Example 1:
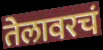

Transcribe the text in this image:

तेलावरचं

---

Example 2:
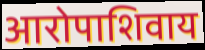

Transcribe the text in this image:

आरोपाशिवाय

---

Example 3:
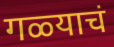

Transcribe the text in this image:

गळ्याचं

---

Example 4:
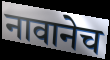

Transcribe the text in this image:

नावानेच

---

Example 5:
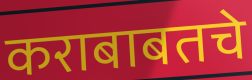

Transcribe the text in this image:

कराबाबतचे